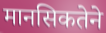
मानसिकतेने